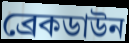
ব্রেকডাউন